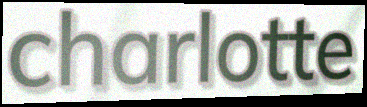
charlotte